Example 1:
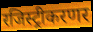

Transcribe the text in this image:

रजिस्ट्रीकरणर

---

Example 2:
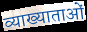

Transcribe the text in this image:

व्याख्याताओं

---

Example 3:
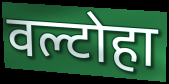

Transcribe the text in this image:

वल्टोहा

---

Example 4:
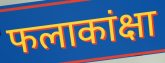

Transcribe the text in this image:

फलाकांक्षा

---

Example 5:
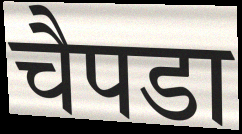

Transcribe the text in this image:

चैपडा